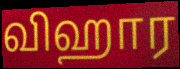
விஹார